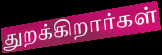
துறக்கிறார்கள்